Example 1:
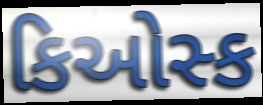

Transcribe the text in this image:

કિઓસ્ક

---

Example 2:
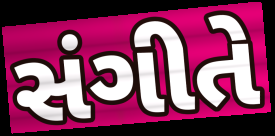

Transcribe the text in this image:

સંગીતે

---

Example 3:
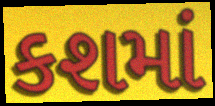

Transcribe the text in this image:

કશમાં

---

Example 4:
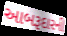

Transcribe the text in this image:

આબરૂદારની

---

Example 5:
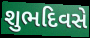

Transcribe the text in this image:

શુભદિવસે